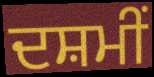
ਦਸ਼ਮੀਂ